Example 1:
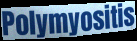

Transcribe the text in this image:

Polymyositis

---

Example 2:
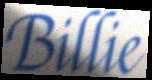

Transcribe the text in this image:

Billie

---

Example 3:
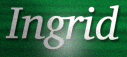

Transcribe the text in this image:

Ingrid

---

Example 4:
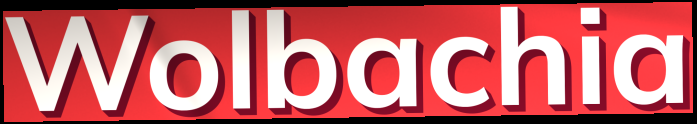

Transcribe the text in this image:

Wolbachia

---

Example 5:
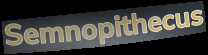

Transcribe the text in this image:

Semnopithecus